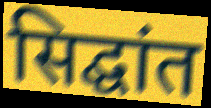
सिद्घांत